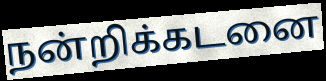
நன்றிக்கடனை